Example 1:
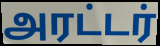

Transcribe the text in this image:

அரட்டர்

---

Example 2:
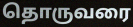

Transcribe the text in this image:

தொருவரை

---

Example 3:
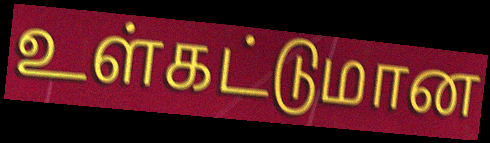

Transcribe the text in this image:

உள்கட்டுமான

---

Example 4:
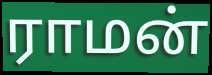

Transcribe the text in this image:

ராமன்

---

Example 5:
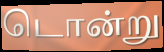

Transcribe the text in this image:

டொன்று